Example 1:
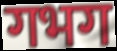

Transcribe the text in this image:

गभग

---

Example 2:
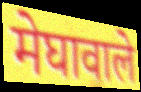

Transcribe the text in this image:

मेघावाले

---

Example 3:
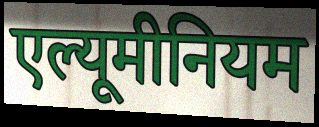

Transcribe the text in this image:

एल्‍यूमीनियम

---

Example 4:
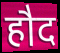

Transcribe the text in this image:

हौद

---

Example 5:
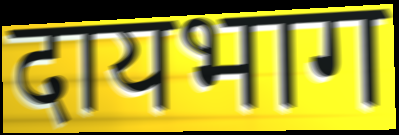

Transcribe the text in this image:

दायभाग